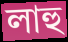
লাহু